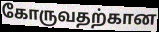
கோருவதற்கான